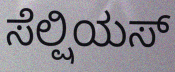
ಸೆಲ್ಷಿಯಸ್